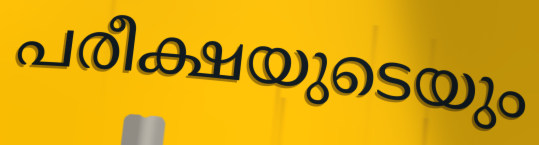
പരീക്ഷയുടെയും